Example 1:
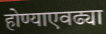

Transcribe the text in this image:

होण्याएवढ्या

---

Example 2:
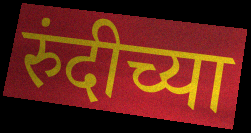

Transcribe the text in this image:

रुंदीच्या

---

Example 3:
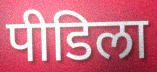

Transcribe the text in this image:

पीडिला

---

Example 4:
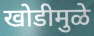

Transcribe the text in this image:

खोडीमुळे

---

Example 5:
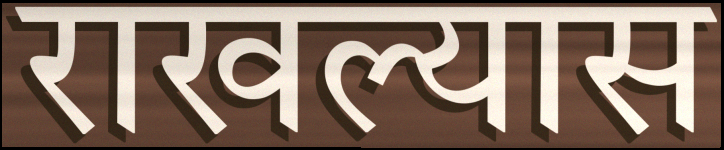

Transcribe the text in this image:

राखल्यास